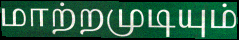
மாற்றமுடியும்